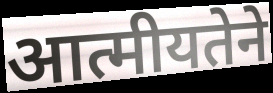
आत्मीयतेने